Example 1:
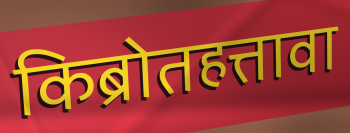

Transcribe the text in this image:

किब्रोतहत्तावा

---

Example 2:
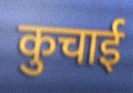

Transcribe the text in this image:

कुचाई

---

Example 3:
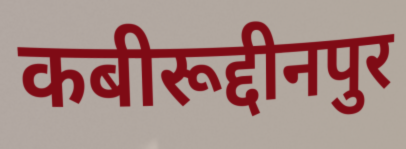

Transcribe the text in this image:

कबीरूद्दीनपुर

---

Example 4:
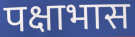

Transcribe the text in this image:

पक्षाभास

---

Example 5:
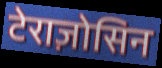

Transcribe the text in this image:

टेराज़ोसिन